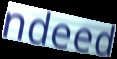
ndeed